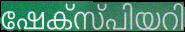
ഷേക്സ്പിയറി